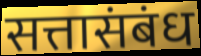
सत्तासंबंध